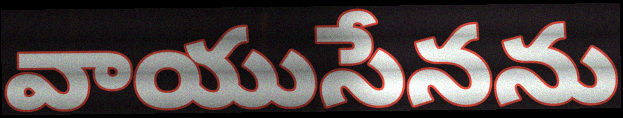
వాయుసేనను